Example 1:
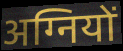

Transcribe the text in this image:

अग्नियों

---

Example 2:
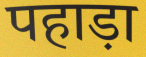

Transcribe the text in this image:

पहाड़ा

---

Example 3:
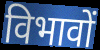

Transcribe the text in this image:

विभावों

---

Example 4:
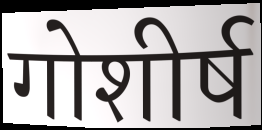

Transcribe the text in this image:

गोशीर्ष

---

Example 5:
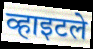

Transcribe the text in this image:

व्हाइटले